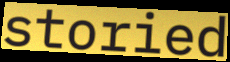
storied